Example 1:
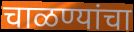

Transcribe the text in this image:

चाळण्यांचा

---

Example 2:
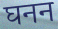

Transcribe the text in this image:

घनन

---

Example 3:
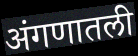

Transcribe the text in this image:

अंगणातली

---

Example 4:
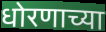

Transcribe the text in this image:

धोरणाच्या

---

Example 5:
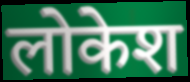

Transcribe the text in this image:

लोकेश